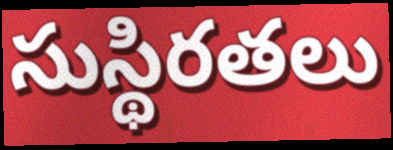
సుస్థిరతలు